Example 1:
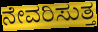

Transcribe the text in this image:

ನೇವರಿಸುತ್ತ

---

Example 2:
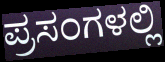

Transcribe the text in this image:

ಪ್ರಸಂಗಳಲ್ಲಿ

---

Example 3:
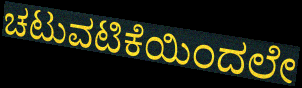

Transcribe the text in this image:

ಚಟುವಟಿಕೆಯಿಂದಲೇ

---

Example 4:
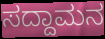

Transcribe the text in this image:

ಸದ್ದಾಮನ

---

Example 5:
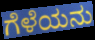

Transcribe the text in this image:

ಗೆಳೆಯನು